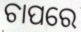
ଚାପରେ